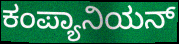
ಕಂಪ್ಯಾನಿಯನ್